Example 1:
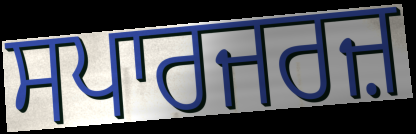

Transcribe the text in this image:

ਸਪਾਰਜਰਜ਼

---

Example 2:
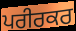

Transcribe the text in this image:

ਪਰੀਰਕਰ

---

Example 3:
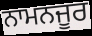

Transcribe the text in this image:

ਨਾਮਨਜੂਰ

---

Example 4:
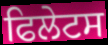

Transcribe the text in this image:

ਫਿਲੇਟਸ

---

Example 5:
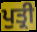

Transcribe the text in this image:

ਪੁਤ੍ਰੀ